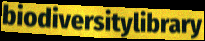
biodiversitylibrary